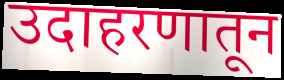
उदाहरणातून